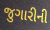
જુગારીની